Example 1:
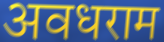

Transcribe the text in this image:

अवधराम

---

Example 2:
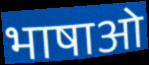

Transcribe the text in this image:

भाषाओ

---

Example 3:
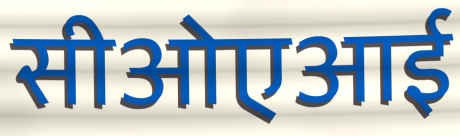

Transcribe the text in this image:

सीओएआई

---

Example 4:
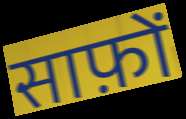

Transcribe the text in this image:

साफ़ों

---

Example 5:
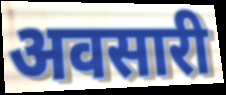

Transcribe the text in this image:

अवसारी